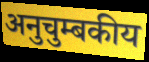
अनुचुम्बकीय